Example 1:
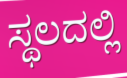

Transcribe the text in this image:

ಸ್ಥಲದಲ್ಲಿ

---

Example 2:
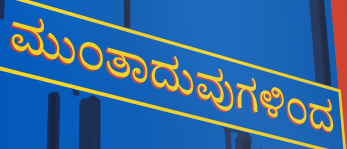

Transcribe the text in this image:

ಮುಂತಾದುವುಗಳಿಂದ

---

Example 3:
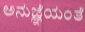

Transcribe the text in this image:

ಅನುಜ್ಞೆಯಂತೆ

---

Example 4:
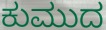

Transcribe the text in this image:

ಕುಮುದ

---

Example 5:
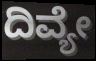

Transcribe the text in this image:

ದಿವ್ಯೇ